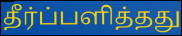
தீர்ப்பளித்தது